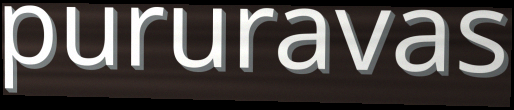
pururavas